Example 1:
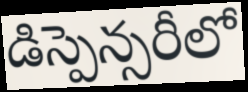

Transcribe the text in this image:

డిస్పెన్సరీలో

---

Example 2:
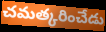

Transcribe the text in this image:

చమత్కరించేడు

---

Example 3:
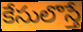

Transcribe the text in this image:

కేసులొస్తే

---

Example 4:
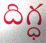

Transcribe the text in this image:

దిగ్ధ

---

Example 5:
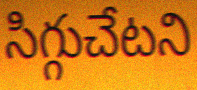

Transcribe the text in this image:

సిగ్గుచేటని